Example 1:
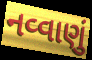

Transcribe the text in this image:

નવ્વાણું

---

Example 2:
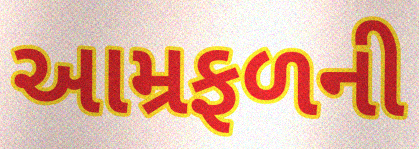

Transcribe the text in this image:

આમ્રફળની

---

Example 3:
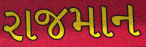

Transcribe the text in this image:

રાજમાન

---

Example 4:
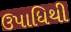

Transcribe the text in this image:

ઉપાધિથી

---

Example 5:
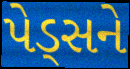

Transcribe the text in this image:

પેડ્સને